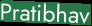
Pratibhav